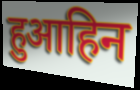
हुआहिन